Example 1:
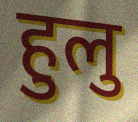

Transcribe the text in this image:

हुलु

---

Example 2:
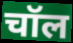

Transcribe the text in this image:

चॉल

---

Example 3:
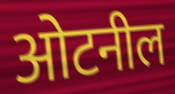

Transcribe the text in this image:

ओटनील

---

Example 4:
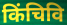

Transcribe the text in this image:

किंचिवि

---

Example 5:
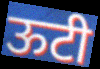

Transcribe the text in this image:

ऊटी